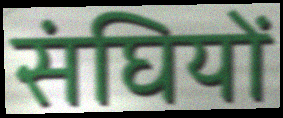
संघियों